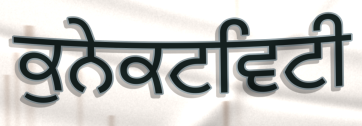
ਕੁਨੇਕਟਵਿਟੀ